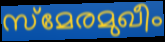
സ്മേരമുഖീം